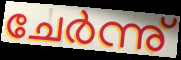
ചേർന്നു്